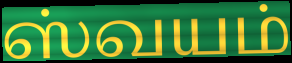
ஸ்வயம்